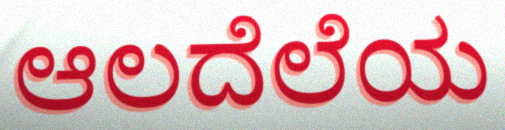
ಆಲದೆಲೆಯ